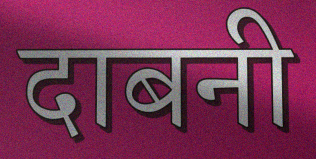
दाबनी